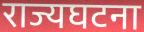
राज्यघटना